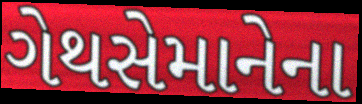
ગેથસેમાનેના